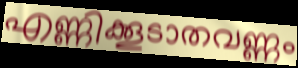
എണ്ണിക്കൂടാതവണ്ണം